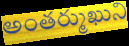
అంతర్ముఖుని